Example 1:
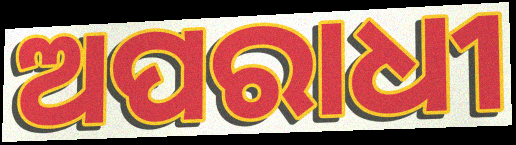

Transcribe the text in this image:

ଅପରାଧୀ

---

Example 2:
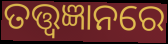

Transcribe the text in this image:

ତତ୍ତ୍ୱଜ୍ଞାନରେ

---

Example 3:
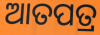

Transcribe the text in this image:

ଆତପତ୍ର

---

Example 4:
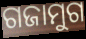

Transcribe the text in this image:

ଗଜାମୁଗ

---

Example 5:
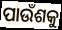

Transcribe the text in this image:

ପାଉଁଶକୁ